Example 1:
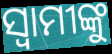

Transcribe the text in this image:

ସ୍ବାମୀଙ୍କୁ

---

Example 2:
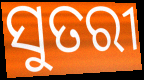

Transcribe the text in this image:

ସୁତରୀ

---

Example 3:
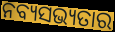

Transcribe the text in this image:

ନବ୍ୟସଭ୍ୟତାର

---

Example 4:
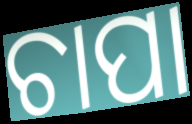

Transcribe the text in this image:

ଚାପା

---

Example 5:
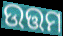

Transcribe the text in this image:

ଉତ୍ତମ